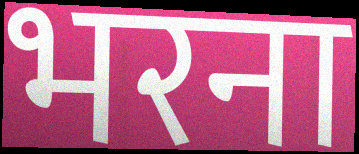
भरना